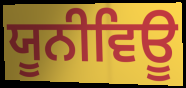
ਯੂਨੀਵਿਊ